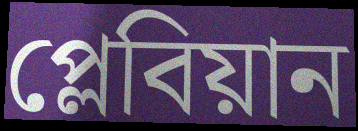
প্লেবিয়ান